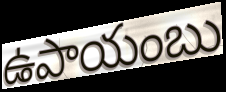
ఉపాయంబు